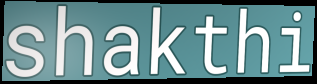
shakthi